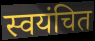
स्वयंचित